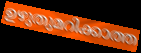
ഉഴുതുമറിക്കാത്ത